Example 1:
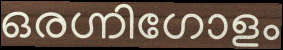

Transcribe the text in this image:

ഒരഗ്നിഗോളം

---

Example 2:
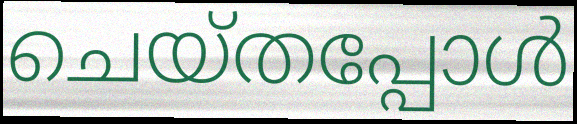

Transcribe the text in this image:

ചെയ്തപ്പോൾ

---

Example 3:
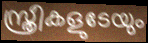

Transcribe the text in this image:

സ്ത്രീകളുടേയും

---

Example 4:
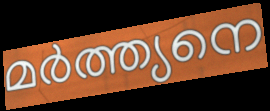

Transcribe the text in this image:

മർത്ത്യനെ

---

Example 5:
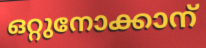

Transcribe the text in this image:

ഒറ്റുനോക്കാന്